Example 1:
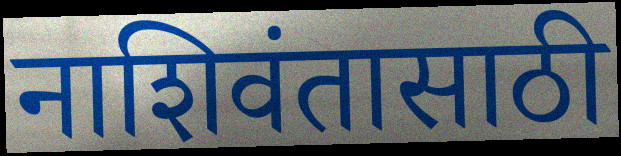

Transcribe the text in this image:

नाशिवंतासाठी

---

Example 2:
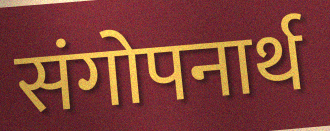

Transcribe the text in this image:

संगोपनार्थ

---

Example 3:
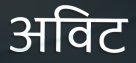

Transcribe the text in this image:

अविट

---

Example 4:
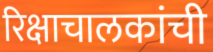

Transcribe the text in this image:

रिक्षाचालकांची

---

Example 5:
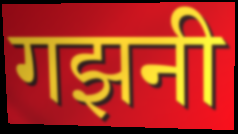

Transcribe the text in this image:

गझनी